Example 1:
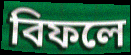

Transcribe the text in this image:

বিফলে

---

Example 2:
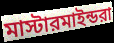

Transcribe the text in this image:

মাস্টারমাইন্ডরা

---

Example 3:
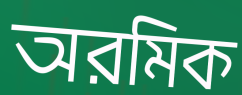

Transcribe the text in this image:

অরমিক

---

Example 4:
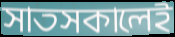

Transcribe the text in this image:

সাতসকালেই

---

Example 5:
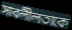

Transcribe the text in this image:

সাবলীলতাকে